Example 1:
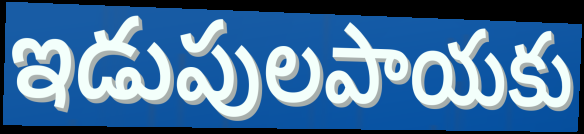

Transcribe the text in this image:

ఇడుపులపాయకు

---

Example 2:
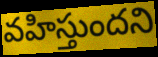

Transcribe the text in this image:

వహిస్తుందని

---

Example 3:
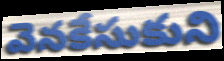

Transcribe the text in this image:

వెనకేసుకుని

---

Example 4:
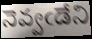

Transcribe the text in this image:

నెవ్వఁడేని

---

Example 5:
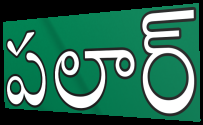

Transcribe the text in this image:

పలార్